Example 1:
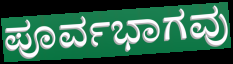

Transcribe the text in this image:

ಪೂರ್ವಭಾಗವು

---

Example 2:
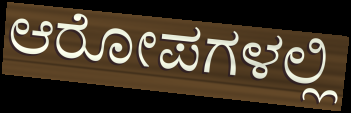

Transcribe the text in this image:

ಆರೋಪಗಳಲ್ಲಿ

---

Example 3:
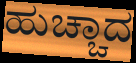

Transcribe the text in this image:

ಹುಚ್ಚಾದ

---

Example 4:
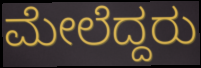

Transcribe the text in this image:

ಮೇಲೆದ್ದರು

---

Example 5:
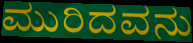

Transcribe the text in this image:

ಮುರಿದವನು